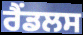
ਰੈਂਡਲਸ